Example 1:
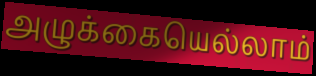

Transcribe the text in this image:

அழுக்கையெல்லாம்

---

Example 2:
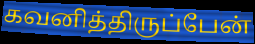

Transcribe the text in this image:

கவனித்திருப்பேன்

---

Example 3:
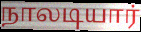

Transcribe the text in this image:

நாலடியார்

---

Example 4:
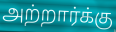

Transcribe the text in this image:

அற்றார்க்கு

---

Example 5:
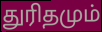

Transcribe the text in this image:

துரிதமும்